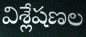
విశ్లేషణల